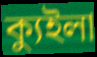
ক্যুইলা